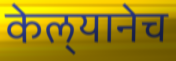
केल्यानेच